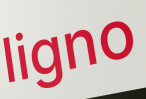
ligno